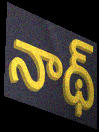
నాథ్